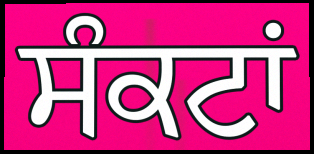
ਸੰਕਟਾਂ